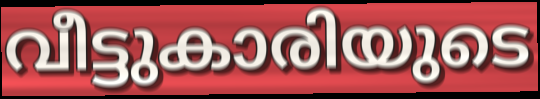
വീട്ടുകാരിയുടെ